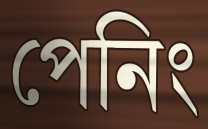
পেনিং